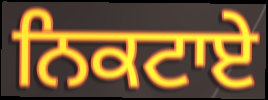
ਨਿਕਟਾਏ